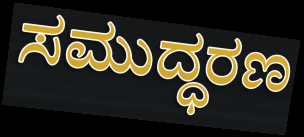
ಸಮುದ್ಧರಣ